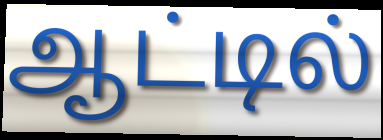
ஆட்டில்